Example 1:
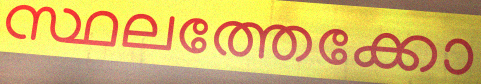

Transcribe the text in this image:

സ്ഥലത്തേക്കോ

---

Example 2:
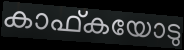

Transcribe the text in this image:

കാഫ്കയോടു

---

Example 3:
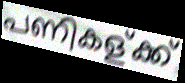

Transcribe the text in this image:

പണികള്ക്ക്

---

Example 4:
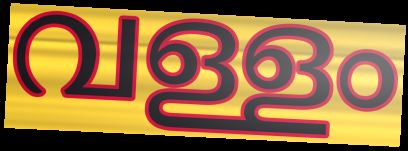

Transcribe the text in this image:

വള്ളം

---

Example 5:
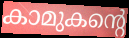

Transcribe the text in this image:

കാമുകന്റെ